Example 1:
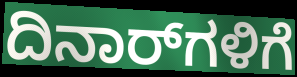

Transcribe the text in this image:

ದಿನಾರ್‌ಗಳಿಗೆ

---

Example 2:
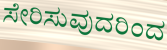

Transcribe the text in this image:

ಸೇರಿಸುವುದರಿಂದ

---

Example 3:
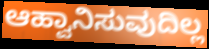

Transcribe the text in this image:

ಆಹ್ವಾನಿಸುವುದಿಲ್ಲ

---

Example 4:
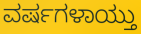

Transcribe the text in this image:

ವರ್ಷಗಳಾಯ್ತು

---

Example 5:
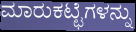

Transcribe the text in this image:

ಮಾರುಕಟ್ಟೆಗಳನ್ನು